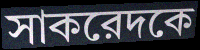
সাকরেদকে